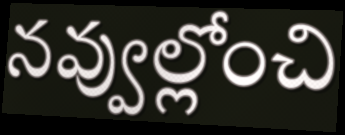
నవ్వుల్లోంచి